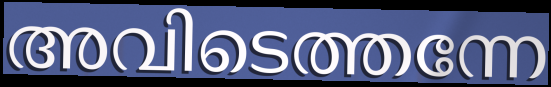
അവിടെത്തന്നേ